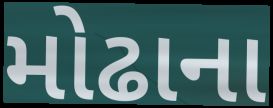
મોઢાના